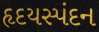
હૃદયસ્પંદન